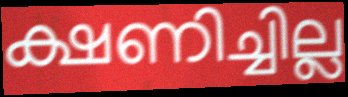
ക്ഷണിച്ചില്ല